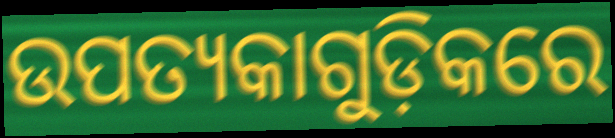
ଉପତ୍ୟକାଗୁଡ଼ିକରେ